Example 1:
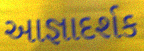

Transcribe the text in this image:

આજ્ઞાદર્શક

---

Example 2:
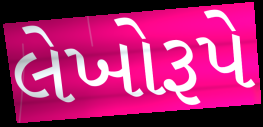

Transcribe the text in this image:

લેખોરૂપે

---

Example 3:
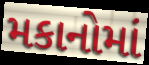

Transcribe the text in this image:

મકાનોમાં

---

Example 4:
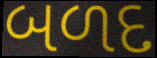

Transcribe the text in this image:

બળદ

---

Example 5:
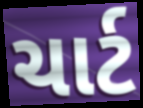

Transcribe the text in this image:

ચાર્ટ